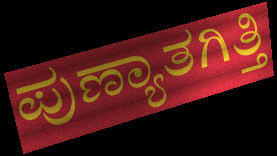
ಪುಣ್ಯಾತಗಿತ್ತಿ